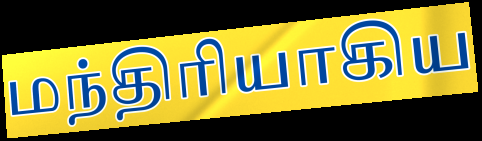
மந்திரியாகிய